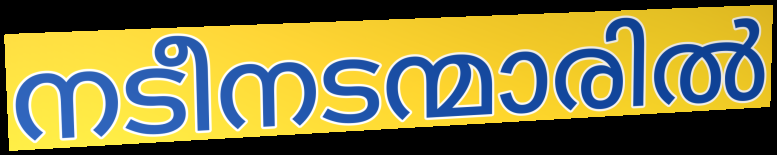
നടീനടന്മാരിൽ